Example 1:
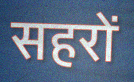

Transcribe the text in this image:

सहरों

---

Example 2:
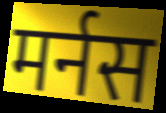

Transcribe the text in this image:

मर्नस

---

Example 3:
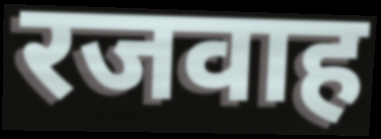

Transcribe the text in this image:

रजवाह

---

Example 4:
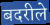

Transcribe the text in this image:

बदरीले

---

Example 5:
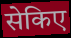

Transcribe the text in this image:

सेकिए